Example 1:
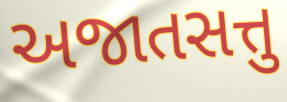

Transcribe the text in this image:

અજાતસત્તુ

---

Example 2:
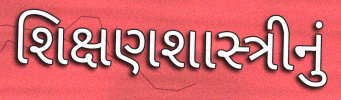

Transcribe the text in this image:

શિક્ષણશાસ્ત્રીનું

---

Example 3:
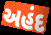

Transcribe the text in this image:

અહંદ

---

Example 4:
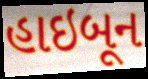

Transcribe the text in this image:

હાઇબૂન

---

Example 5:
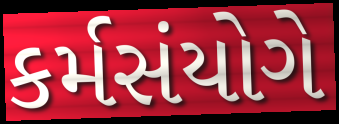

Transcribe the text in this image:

કર્મસંયોગે